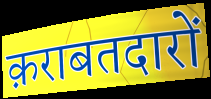
क़राबतदारों